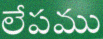
లేపము